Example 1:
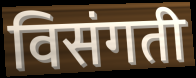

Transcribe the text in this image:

विसंगती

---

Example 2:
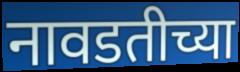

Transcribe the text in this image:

नावडतीच्या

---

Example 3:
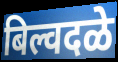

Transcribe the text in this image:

बिल्वदळे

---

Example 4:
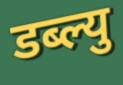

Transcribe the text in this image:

डब्ल्यु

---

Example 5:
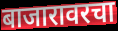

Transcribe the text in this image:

बाजारावरचा